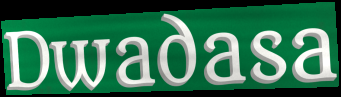
Dwadasa